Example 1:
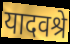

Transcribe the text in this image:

यादवश्रे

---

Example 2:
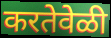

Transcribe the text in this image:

करतेवेळी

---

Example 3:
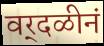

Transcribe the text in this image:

वर्दळीनं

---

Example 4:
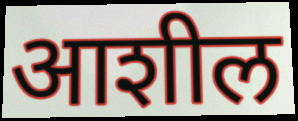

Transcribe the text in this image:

आशील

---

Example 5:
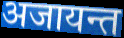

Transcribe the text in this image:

अजायन्त